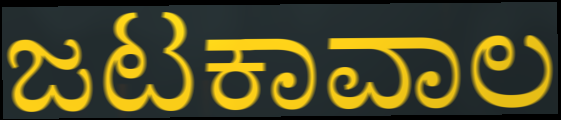
ಜಟಕಾವಾಲ